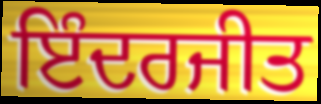
ਇੰਦਰਜੀਤ